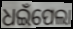
ଧଇଁପେଲା